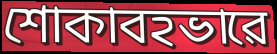
শোকাবহভাৱে